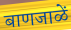
बाणजाळें